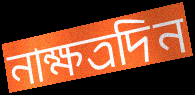
নাক্ষত্রদিন